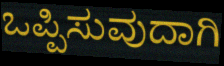
ಒಪ್ಪಿಸುವುದಾಗಿ